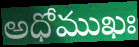
అధోముఖః